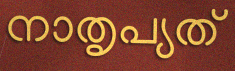
നാതൃപ്യത്